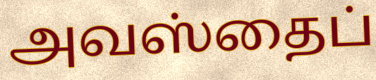
அவஸ்தைப்